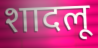
शादलू